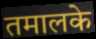
तमालके